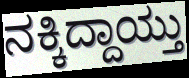
ನಕ್ಕಿದ್ದಾಯ್ತು